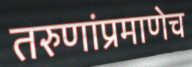
तरुणांप्रमाणेच